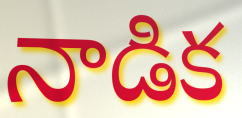
నాడిక